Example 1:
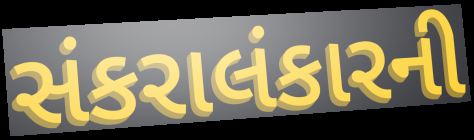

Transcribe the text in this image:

સંકરાલંકારની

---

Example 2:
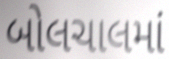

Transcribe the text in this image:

બોલચાલમાં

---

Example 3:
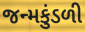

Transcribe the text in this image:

જન્મકુંડળી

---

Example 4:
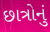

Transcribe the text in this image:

છાત્રોનું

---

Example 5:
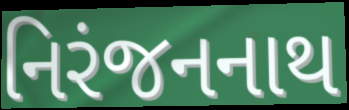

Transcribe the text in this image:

નિરંજનનાથ